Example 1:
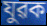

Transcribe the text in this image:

যুৱক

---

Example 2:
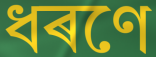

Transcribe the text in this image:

ধৰণে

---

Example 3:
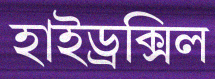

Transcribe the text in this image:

হাইড্ৰক্সিল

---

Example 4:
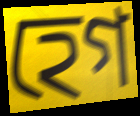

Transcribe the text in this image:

হেগ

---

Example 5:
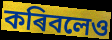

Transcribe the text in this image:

কৰিবলেও